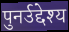
पुनर्उद्देश्य